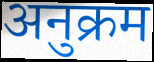
अनुक्रम